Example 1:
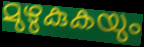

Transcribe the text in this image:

മുഴുകുകയും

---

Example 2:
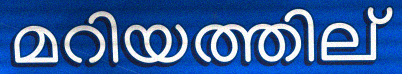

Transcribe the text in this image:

മറിയത്തില്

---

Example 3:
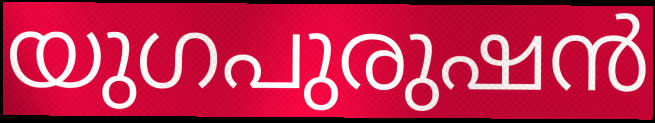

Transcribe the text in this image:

യുഗപുരുഷൻ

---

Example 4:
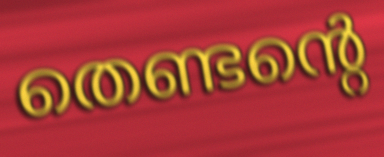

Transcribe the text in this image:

തെണ്ടന്റെ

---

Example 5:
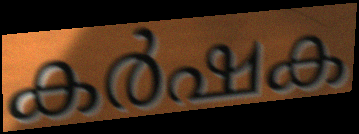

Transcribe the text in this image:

കർഷക